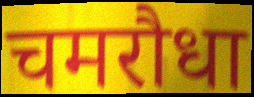
चमरौधा